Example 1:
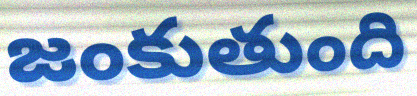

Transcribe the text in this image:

జంకుతుంది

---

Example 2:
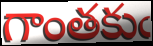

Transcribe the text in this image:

గాంతకుఁ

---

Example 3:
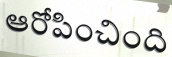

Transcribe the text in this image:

ఆరోపించింది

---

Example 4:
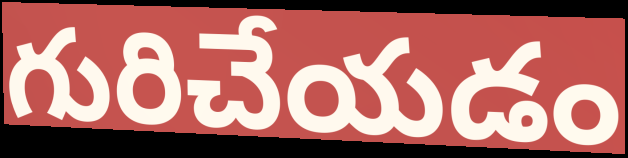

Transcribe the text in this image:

గురిచేయడం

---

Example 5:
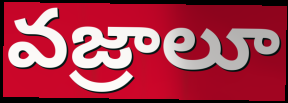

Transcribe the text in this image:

వజ్రాలూ